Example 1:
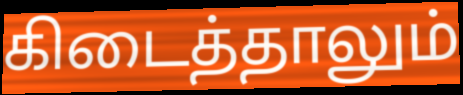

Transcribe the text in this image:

கிடைத்தாலும்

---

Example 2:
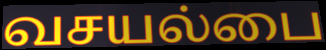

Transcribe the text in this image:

வசயல்பை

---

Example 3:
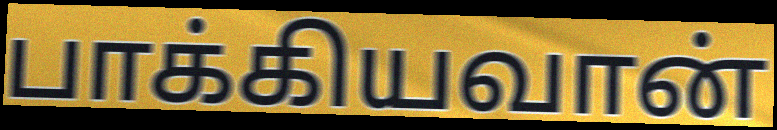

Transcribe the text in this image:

பாக்கியவான்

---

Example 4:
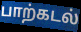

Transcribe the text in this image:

பாற்கடல்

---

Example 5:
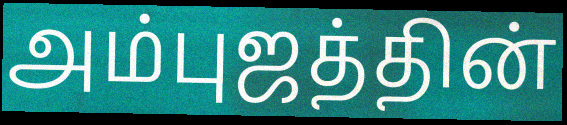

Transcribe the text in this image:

அம்புஜத்தின்